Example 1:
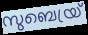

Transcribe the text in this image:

സുബെയ്ര്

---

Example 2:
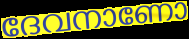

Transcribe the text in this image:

ദേവനാണോ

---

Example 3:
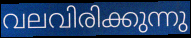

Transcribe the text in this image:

വലവിരിക്കുന്നു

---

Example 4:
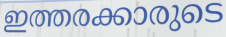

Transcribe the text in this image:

ഇത്തരക്കാരുടെ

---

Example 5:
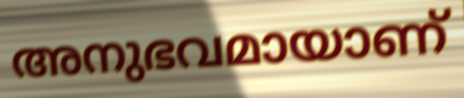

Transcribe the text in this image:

അനുഭവമായാണ്